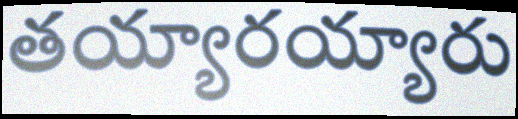
తయ్యారయ్యారు